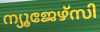
ന്യൂജേഴ്സി